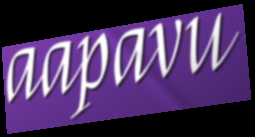
aapavu